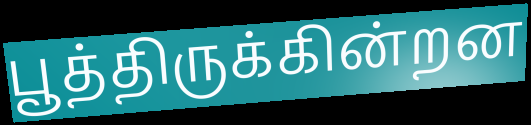
பூத்திருக்கின்றன